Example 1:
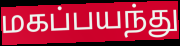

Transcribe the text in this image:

மகப்பயந்து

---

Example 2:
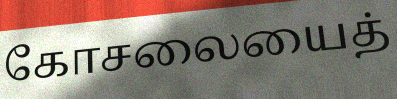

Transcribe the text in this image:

கோசலையைத்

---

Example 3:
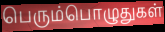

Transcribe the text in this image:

பெரும்பொழுதுகள்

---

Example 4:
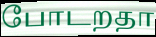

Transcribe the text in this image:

போடறதா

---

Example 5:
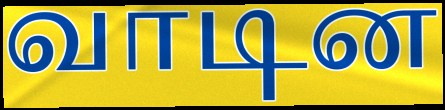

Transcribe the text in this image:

வாடின